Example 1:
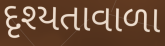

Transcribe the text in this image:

દૃશ્યતાવાળા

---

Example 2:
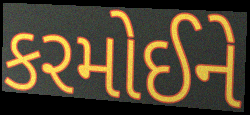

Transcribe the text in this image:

કરમોઈને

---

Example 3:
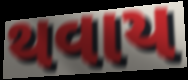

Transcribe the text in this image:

થવાય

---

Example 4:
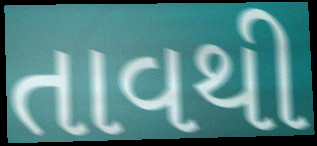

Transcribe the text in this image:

તાવથી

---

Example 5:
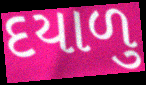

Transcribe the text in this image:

દયાળુ